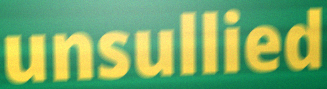
unsullied